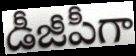
డీజీపీగా